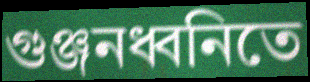
গুঞ্জনধ্বনিতে